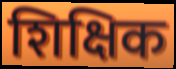
शिक्षिक